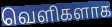
வெளிகளாக